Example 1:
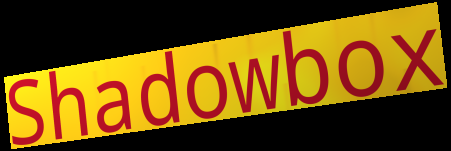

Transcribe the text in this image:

Shadowbox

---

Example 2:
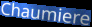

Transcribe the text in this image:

Chaumiere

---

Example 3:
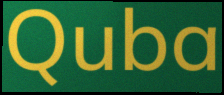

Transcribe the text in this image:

Quba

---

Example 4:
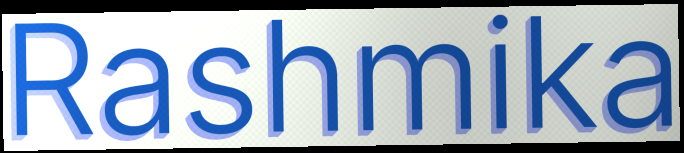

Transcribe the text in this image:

Rashmika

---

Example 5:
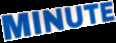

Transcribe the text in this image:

MINUTE